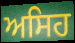
ਅਸਿਹ